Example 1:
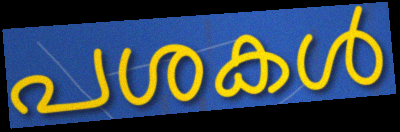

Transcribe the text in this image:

പശകൾ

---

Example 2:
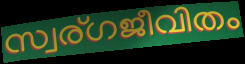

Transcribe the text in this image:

സ്വര്ഗജീവിതം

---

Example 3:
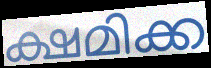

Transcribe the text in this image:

ക്ഷമിക്ക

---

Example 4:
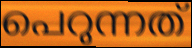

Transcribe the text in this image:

പെറുന്നത്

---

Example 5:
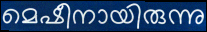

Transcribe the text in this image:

മെഷീനായിരുന്നു